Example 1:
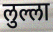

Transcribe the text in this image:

लुल्ला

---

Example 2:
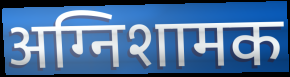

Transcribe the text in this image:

अग्निशामक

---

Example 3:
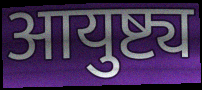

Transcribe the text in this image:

आयुष्ट्य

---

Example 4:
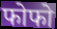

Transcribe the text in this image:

फोफो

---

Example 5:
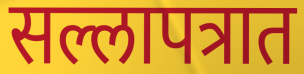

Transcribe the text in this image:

सल्लापत्रात